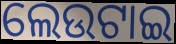
ଲେଉଟାଇ